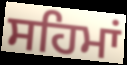
ਸਹਿਮਾਂ